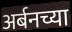
अर्बनच्या